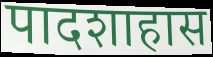
पादशाहास